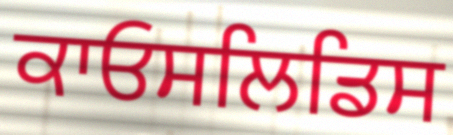
ਕਾਓਸਲਿਡਿਸ